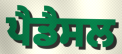
ਪੈਡੈਸਲ